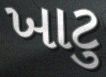
ખાટુ